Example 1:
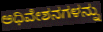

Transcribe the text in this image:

ಅಧಿವೇಶನಗಳನ್ನು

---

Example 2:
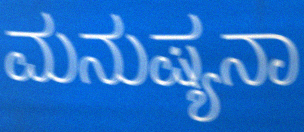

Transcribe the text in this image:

ಮನುಷ್ಯನಾ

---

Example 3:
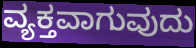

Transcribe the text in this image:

ವ್ಯಕ್ತವಾಗುವುದು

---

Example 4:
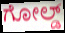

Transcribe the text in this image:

ಗೋಲ್ಡ್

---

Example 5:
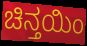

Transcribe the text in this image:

ಚಿನ್ತಯಿಂ